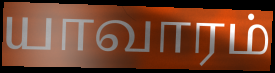
யாவாரம்